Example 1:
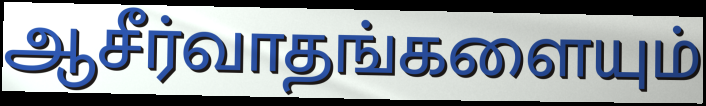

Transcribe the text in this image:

ஆசீர்வாதங்களையும்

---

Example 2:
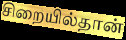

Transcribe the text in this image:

சிறையில்தான்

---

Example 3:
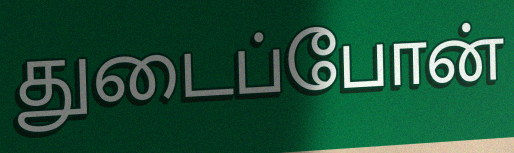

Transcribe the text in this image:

துடைப்போன்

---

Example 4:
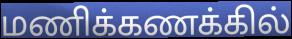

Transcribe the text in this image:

மணிக்கணக்கில்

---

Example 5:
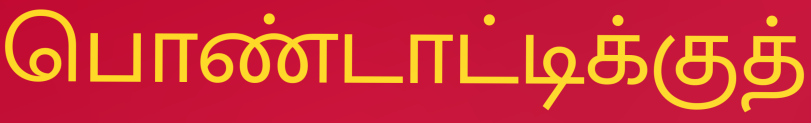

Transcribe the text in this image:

பொண்டாட்டிக்குத்